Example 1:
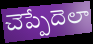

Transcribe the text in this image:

చెప్పేదెలా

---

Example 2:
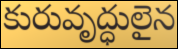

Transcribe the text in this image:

కురువృద్ధులైన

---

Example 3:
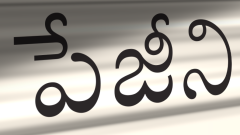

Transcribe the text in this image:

పేజీని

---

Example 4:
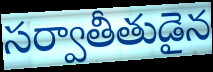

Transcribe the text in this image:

సర్వాతీతుడైన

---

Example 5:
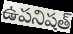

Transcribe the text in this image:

ఉపనిషత్